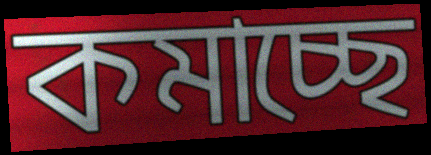
কমাচ্ছে